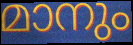
മാനും